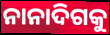
ନାନାଦିଗକୁ